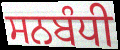
ਸਨਬੰਧੀ